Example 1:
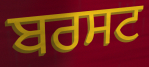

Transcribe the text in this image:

ਬਰਸਟ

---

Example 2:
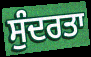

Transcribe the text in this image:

ਸੁੰਦਰਤਾ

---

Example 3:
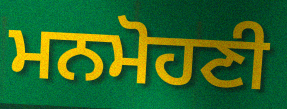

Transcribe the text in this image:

ਮਨਮੋਹਣੀ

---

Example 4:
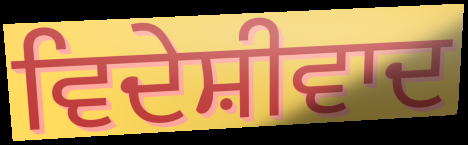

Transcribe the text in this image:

ਵਿਦੇਸ਼ੀਵਾਦ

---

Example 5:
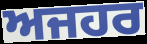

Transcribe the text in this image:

ਅਜਹਰ